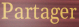
Partager